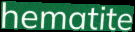
hematite